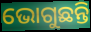
ଭୋଗୁଛନ୍ତି